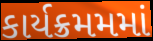
કાર્યક્રમમમાં